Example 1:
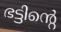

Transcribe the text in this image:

ഭട്ടിന്റെ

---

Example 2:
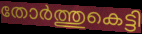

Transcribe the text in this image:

തോർത്തുകെട്ടി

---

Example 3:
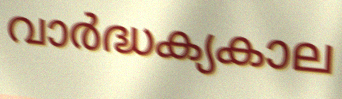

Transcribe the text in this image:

വാർദ്ധക്യകാല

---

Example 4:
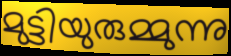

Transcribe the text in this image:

മുട്ടിയുരുമ്മുന്നു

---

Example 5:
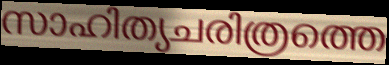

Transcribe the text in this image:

സാഹിത്യചരിത്രത്തെ